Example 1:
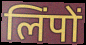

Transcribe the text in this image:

लिंपों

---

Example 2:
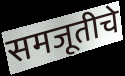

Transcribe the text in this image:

समजूतीचे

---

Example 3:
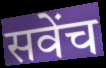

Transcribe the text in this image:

सवेंच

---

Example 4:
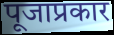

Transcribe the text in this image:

पूजाप्रकार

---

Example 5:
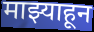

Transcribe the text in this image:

माझ्याहून